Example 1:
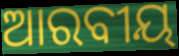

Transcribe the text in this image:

ଆରବୀୟ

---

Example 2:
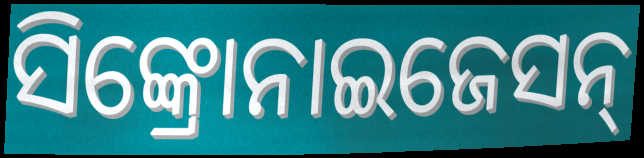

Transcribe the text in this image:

ସିଙ୍କ୍ରୋନାଇଜେସନ୍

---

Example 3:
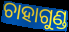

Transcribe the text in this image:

ଚାହାଗୁଣ୍ଡ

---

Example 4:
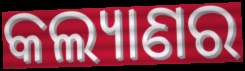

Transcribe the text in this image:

କଲ୍ୟାଣର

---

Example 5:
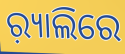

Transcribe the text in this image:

ର଼୍ୟାଲିରେ